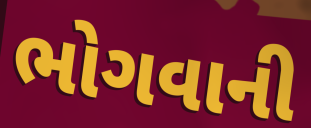
ભોગવાની